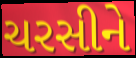
ચરસીને